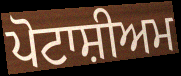
ਪੋਟਾਸ਼ੀਅਮ